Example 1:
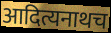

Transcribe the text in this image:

आदित्यनाथच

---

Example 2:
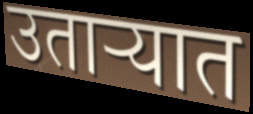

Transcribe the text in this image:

उताऱ्यात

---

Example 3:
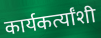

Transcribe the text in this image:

कार्यकर्त्यांशी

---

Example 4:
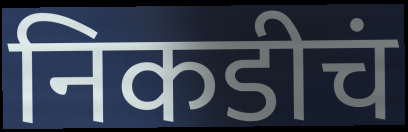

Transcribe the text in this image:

निकडीचं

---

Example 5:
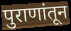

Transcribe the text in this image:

पुराणांतून